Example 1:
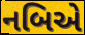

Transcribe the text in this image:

નબિએ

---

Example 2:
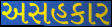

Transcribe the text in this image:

અસહકાર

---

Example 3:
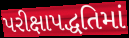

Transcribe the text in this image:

પરીક્ષાપદ્ધતિમાં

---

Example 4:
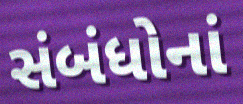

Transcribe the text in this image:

સંબંધોનાં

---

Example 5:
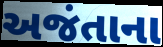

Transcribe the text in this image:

અજંતાના